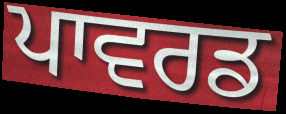
ਪਾਵਰਡ